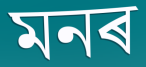
মনৰ